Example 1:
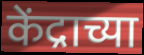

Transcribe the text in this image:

केंद्राच्या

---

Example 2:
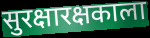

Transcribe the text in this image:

सुरक्षारक्षकाला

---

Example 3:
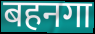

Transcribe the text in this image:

बहनगा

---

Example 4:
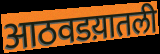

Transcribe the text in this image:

आठवडय़ातली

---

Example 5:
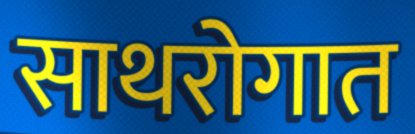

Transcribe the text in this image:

साथरोगात